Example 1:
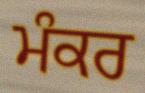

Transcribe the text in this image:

ਮੰਕਰ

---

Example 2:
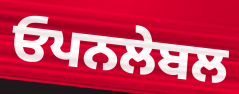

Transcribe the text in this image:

ਓਪਨਲੇਬਲ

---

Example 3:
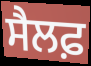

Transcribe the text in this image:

ਸੈਲਫ਼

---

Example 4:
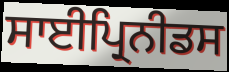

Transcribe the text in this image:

ਸਾਈਪ੍ਰਿਨੀਡਸ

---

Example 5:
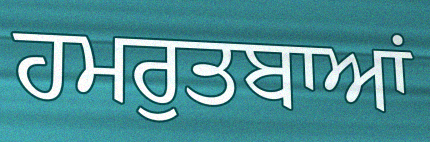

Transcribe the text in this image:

ਹਮਰੁਤਬਾਆਂ